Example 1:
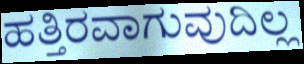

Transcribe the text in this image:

ಹತ್ತಿರವಾಗುವುದಿಲ್ಲ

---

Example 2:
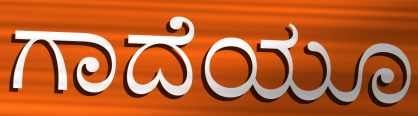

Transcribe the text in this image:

ಗಾದೆಯೂ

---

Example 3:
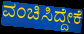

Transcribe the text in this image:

ವಂಚಿಸಿದ್ದೇಕೆ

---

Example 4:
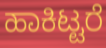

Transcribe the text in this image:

ಹಾಕಿಟ್ಟರೆ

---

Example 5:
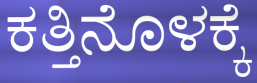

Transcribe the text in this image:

ಕತ್ತಿನೊಳಕ್ಕೆ